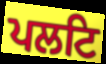
ਪਲਟਿ